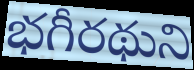
భగీరథుని